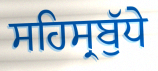
ਸਹਿਸ੍ਰਬੁੱਧੇ